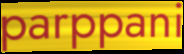
parppani